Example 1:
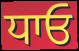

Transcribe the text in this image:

ਧਾਓ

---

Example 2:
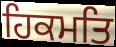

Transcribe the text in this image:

ਹਿਕਮਤਿ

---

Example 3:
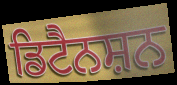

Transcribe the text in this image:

ਡਿਟੈਨਸ਼ਨ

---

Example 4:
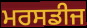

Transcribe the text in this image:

ਮਰਸਡੀਜ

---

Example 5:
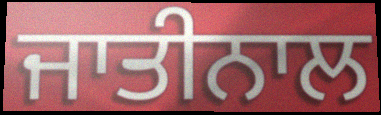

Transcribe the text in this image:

ਜਾਤੀਨਾਲ